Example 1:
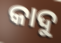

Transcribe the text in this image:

କାଦୁ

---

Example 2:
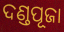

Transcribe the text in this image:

ଦଣ୍ଡପୂଜା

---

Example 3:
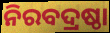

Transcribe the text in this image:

ନିରବଦ୍ରଷ୍ଠା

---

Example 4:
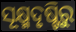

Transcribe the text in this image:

ସୂକ୍ଷ୍ମଦୃଷ୍ଟିରୁ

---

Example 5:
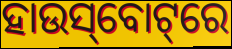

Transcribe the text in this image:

ହାଉସ୍‌ବୋଟ୍‌ରେ